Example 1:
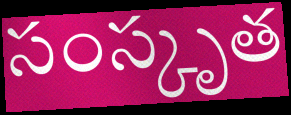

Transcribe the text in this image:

సంస్కృత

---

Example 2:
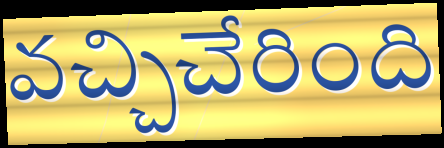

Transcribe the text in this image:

వచ్చిచేరింది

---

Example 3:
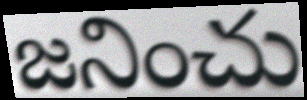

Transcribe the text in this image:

జనించు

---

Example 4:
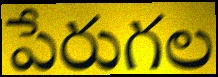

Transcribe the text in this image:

పేరుగల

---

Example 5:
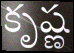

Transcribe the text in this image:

కృష్ణ